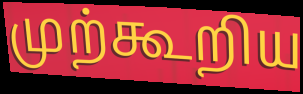
முற்கூறிய